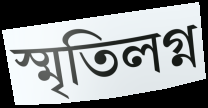
স্মৃতিলগ্ন